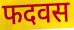
फदवस